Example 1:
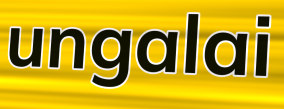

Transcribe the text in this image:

ungalai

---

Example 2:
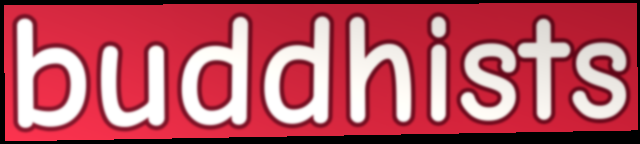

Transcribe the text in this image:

buddhists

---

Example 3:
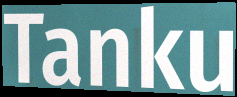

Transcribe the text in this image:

Tanku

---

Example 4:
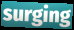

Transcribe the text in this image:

surging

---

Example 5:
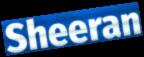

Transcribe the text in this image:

Sheeran